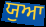
ਯੁਆ